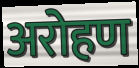
अरोहण